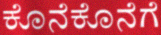
ಕೊನೆಕೊನೆಗೆ